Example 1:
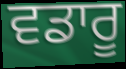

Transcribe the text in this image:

ਵਡਾਰੂ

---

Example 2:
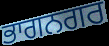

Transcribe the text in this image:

ਭਾਗਨਗਰ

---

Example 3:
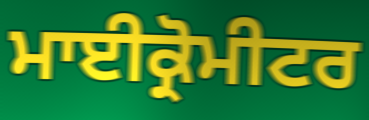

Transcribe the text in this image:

ਮਾਈਕ੍ਰੋਮੀਟਰ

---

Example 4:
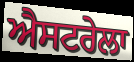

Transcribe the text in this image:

ਐਸਟਰੇਲਾ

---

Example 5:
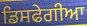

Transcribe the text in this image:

ਡਿਸਫੇਗੀਆ